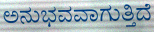
ಅನುಭವವಾಗುತ್ತಿದೆ